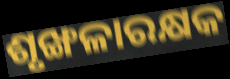
ଶୃଙ୍ଖଳାରକ୍ଷକ